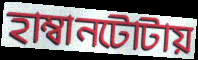
হাম্বানটোটায়